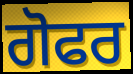
ਗੋਫਰ